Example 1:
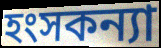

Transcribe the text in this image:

হংসকন্যা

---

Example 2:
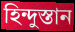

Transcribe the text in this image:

হিন্দুস্তান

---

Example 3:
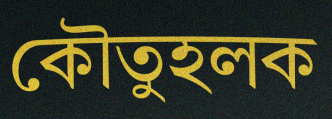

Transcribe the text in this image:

কৌতুহলক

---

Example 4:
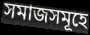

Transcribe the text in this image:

সমাজসমূহে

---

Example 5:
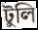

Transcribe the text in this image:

টুলি